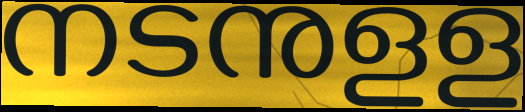
നടനുളള